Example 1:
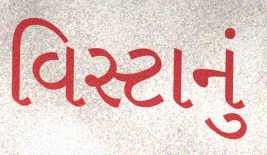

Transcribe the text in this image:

વિસ્ટાનું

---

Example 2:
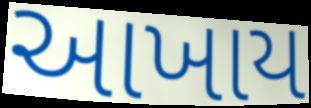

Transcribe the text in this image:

આખાય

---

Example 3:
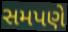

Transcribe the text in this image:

સમપણે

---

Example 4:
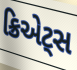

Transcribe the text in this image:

ક્રિએટ્સ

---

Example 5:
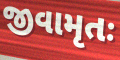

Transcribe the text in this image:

જીવામૃતઃ